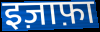
इज़ाफ़ा